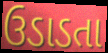
ઉડાડતા